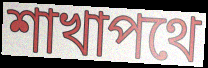
শাখাপথে